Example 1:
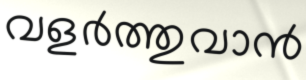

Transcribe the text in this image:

വളർത്തുവാൻ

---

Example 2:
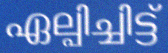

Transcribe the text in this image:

ഏല്പിച്ചിട്ട്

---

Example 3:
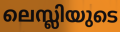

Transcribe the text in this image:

ലെസ്ലിയുടെ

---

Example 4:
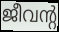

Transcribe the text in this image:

ജീവന്റ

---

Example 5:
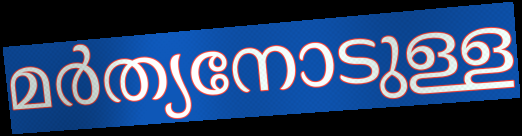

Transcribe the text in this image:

മർത്യനോടുള്ള